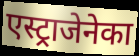
एस्ट्राजेनेका